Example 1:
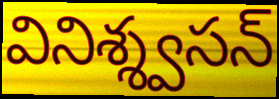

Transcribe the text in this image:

వినిశ్శ్వసన్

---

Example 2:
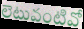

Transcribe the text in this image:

లెటువంటివో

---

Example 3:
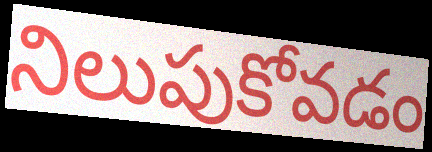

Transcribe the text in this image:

నిలుపుకోవడం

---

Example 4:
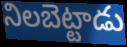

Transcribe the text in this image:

నిలబెట్టాడు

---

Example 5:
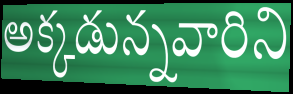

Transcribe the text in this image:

అక్కడున్నవారిని